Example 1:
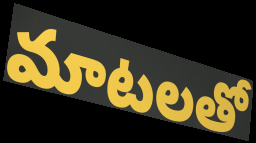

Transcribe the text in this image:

మాటలతో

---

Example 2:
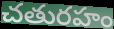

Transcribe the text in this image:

చతురహం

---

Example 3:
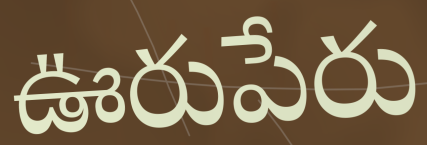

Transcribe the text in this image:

ఊరుపేరు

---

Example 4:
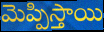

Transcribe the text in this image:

మెప్పిస్తాయి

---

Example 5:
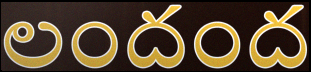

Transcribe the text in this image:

లందంద